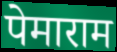
पेमाराम